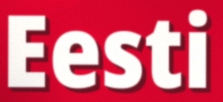
Eesti